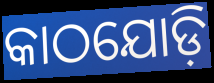
କାଠଯୋଡ଼ି